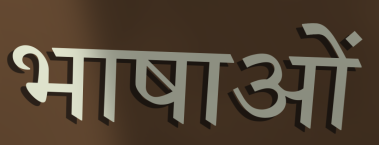
भाषाओें